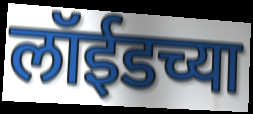
लॉईडच्या